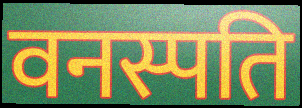
वनस्‍पति